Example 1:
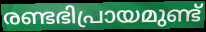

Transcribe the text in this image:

രണ്ടഭിപ്രായമുണ്ട്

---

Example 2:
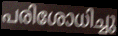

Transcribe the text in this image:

പരിശോധിച്ചു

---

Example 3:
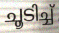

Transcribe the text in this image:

ചൂടിച്ച്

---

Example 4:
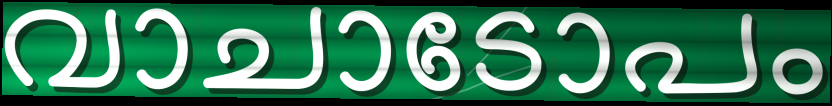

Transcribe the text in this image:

വാചാടോപം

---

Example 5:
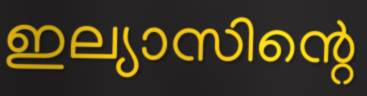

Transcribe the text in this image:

ഇല്യാസിന്റെ